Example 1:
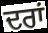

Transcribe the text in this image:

ਦਰਾਂ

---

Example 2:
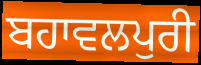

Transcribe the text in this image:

ਬਹਾਵਲਪੁਰੀ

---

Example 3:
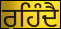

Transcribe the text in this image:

ਰਹਿੰਦੈ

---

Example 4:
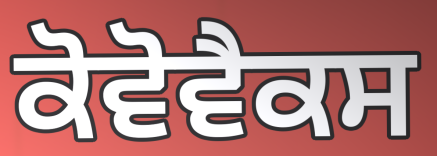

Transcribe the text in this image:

ਕੋਵੋਵੈਕਸ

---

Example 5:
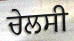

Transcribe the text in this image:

ਚੇਲਸੀ